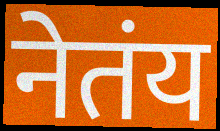
नेतंय